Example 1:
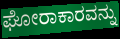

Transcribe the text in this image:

ಘೋರಾಕಾರವನ್ನು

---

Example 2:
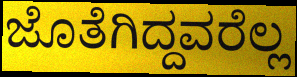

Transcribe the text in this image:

ಜೊತೆಗಿದ್ದವರೆಲ್ಲ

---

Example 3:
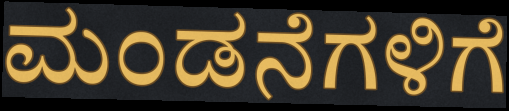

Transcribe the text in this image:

ಮಂಡನೆಗಳಿಗೆ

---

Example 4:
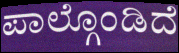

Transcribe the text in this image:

ಪಾಲ್ಗೊಂಡಿದೆ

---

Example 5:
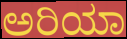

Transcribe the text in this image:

ಅರಿಯಾ